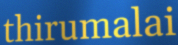
thirumalai